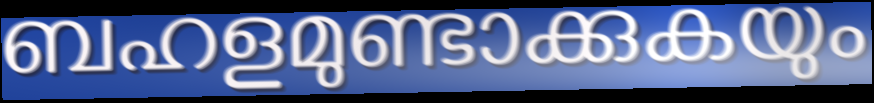
ബഹളമുണ്ടാക്കുകയും